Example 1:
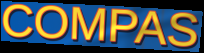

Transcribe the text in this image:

COMPAS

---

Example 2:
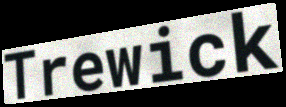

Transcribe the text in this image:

Trewick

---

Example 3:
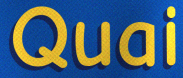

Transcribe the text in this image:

Quai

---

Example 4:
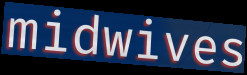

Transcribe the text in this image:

midwives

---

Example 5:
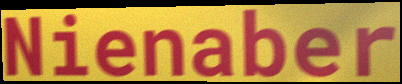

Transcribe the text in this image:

Nienaber